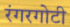
रंगरगोटी